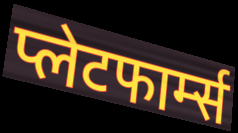
प्लेटफार्म्स